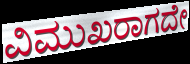
ವಿಮುಖರಾಗದೇ